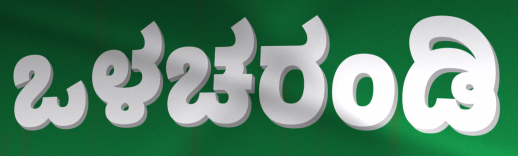
ಒಳಚರಂಡಿ